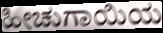
ಹೀಚುಗಾಯಿಯ